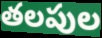
తలపుల